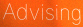
Advising